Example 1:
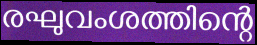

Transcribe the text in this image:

രഘുവംശത്തിന്റെ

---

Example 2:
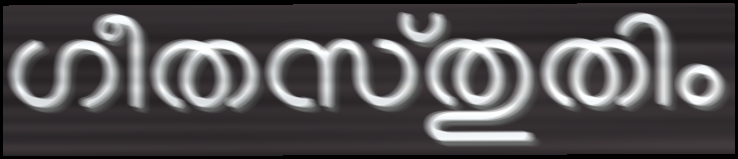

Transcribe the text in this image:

ഗീതസ്തുതിം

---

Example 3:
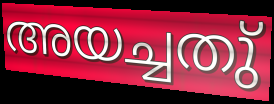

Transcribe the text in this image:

അയച്ചതു്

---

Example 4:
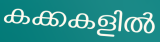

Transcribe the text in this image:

കക്കകളിൽ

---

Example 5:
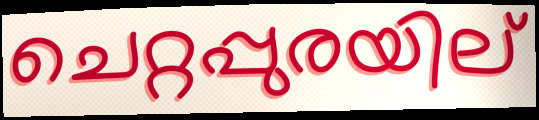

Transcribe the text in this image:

ചെറ്റപ്പുരയില്